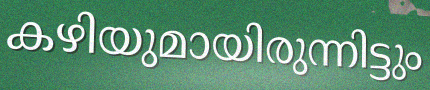
കഴിയുമായിരുന്നിട്ടും